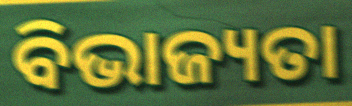
ବିଭାଜ୍ୟତା